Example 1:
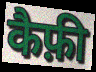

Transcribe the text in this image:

कैफ़ी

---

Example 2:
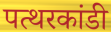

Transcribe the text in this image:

पत्थरकांडी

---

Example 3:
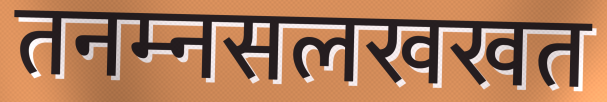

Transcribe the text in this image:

तनम्नसलखखत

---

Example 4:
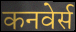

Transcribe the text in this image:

कनवेर्स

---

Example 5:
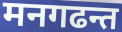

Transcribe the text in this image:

मनगढन्त